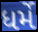
ધર્મે